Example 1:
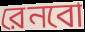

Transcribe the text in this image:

রেনবো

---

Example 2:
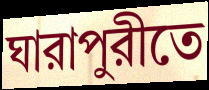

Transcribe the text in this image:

ঘারাপুরীতে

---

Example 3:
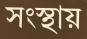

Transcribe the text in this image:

সংস্থায়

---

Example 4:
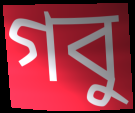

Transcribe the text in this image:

গবু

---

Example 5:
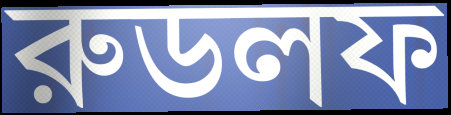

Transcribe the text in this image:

রুডলফ